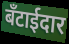
बँटाईदार